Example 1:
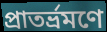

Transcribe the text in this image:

প্রাতর্ভ্রমণে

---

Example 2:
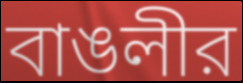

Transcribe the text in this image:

বাঙলীর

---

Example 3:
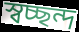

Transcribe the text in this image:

স্বচ্ছন্দ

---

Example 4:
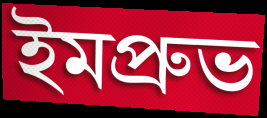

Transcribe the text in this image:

ইমপ্রুভ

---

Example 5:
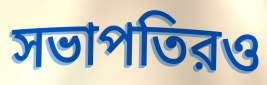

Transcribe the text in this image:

সভাপতিরও